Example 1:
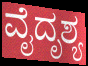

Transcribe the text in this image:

ವೈದೃಶ್ಯ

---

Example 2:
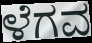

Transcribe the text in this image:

ಳೆಗವ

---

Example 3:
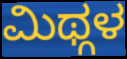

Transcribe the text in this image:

ಮಿಥ್ಗಳ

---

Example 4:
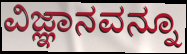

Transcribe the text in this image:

ವಿಜ್ಞಾನವನ್ನೂ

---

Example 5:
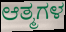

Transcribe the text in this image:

ಆತ್ಮಗಳ